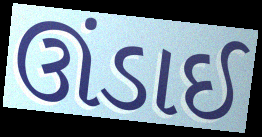
ઊંડાઈ